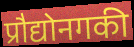
प्रौद्योनगकी